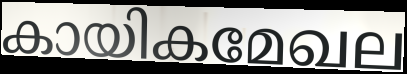
കായികമേഖല